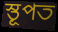
স্তূপত